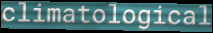
climatological